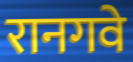
रानगवे